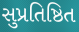
સુપ્રતિષ્ઠિત